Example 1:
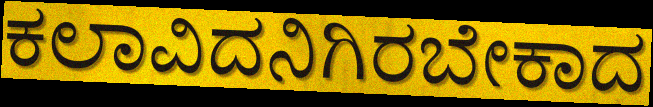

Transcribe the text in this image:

ಕಲಾವಿದನಿಗಿರಬೇಕಾದ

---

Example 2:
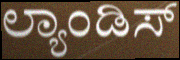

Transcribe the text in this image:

ಲ್ಯಾಂಡಿಸ್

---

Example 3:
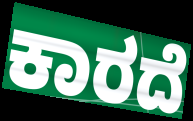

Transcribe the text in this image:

ಕಾರದೆ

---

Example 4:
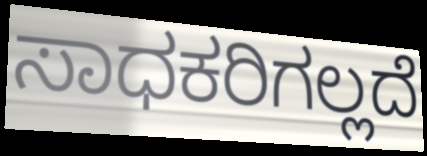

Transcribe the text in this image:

ಸಾಧಕರಿಗಲ್ಲದೆ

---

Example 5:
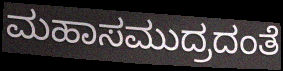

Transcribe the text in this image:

ಮಹಾಸಮುದ್ರದಂತೆ